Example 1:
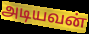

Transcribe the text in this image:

அடியவன்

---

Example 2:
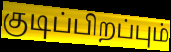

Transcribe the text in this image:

குடிப்பிறப்பும்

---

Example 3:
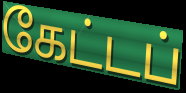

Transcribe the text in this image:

கேட்டப்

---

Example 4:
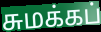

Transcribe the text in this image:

சுமக்கப்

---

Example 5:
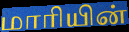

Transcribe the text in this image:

மாரியின்